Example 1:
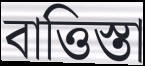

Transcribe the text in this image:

বাত্তিস্তা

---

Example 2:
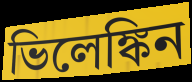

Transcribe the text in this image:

ভিলেঙ্কিন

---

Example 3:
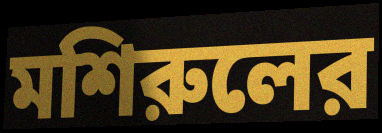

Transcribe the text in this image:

মশিরুলের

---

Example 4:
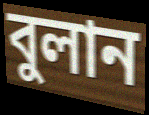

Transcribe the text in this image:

বুলান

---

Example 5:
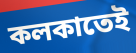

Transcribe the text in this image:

কলকাতেই